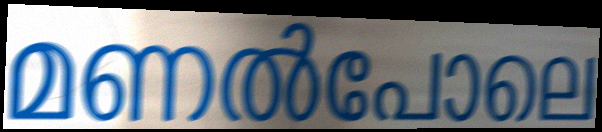
മണൽപോലെ